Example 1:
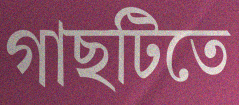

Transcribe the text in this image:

গাছটিতে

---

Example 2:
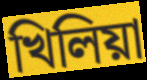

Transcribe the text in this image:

খিলিয়া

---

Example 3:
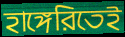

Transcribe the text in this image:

হাঙ্গেরিতেই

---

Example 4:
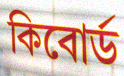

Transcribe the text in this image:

কিবোর্ড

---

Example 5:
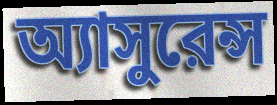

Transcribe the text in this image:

অ্যাসুরেন্স